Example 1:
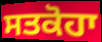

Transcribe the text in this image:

ਸਤਕੋਹਾ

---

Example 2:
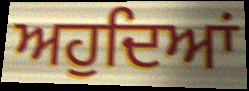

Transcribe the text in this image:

ਅਹੁਦਿਆਂ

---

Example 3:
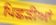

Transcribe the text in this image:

ਪਿਛੜੀਆਂ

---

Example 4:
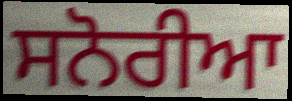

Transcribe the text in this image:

ਸਨੋਰੀਆ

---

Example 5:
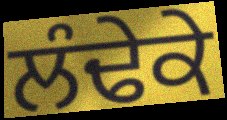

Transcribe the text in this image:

ਲੰਢੇਕੇ